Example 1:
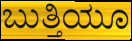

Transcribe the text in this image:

ಬುತ್ತಿಯೂ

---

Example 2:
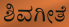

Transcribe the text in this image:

ಶಿವಗೀತೆ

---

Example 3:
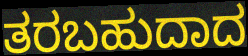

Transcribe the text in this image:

ತರಬಹುದಾದ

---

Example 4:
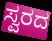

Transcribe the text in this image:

ಸ್ವರದ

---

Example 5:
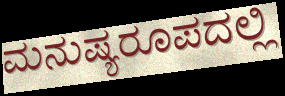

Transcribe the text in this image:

ಮನುಷ್ಯರೂಪದಲ್ಲಿ